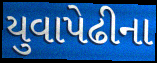
યુવાપેઢીના